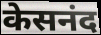
केसनंद